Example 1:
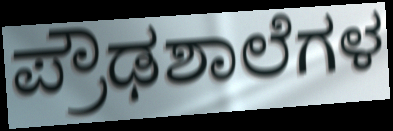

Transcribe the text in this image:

ಪ್ರೌಢಶಾಲೆಗಳ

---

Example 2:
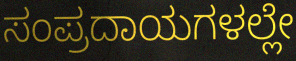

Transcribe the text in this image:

ಸಂಪ್ರದಾಯಗಳಲ್ಲೇ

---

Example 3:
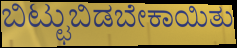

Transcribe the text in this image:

ಬಿಟ್ಟುಬಿಡಬೇಕಾಯಿತು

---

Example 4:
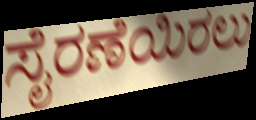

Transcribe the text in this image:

ಸೈರಣೆಯಿರಲು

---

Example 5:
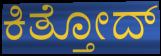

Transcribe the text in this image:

ಕಿತ್ತೋದ್